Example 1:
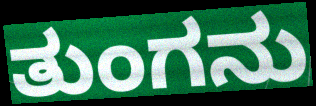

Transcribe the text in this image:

ತುಂಗನು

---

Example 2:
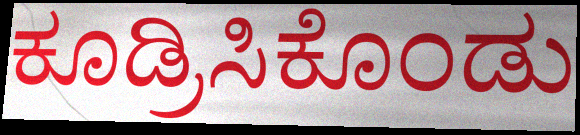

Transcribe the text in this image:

ಕೂಡ್ರಿಸಿಕೊಂಡು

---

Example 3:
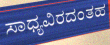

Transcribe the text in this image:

ಸಾಧ್ಯವಿರದಂತಹ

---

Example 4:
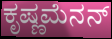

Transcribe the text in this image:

ಕೃಷ್ಣಮೆನನ್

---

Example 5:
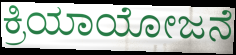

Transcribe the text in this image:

ಕ್ರಿಯಾಯೋಜನೆ